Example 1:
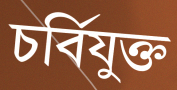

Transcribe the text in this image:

চৰ্বিযুক্ত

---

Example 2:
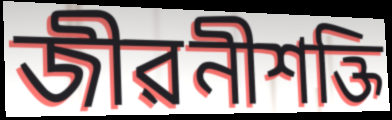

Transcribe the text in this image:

জীৱনীশক্তি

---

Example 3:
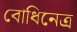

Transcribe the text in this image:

বোধিনেত্ৰ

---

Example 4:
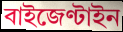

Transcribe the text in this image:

বাইজেণ্টাইন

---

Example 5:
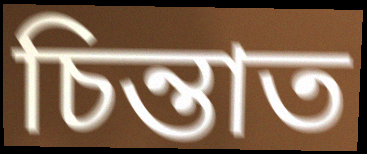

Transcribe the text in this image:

চিন্তাত